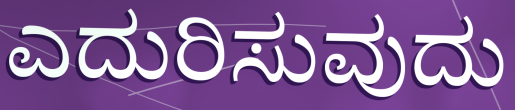
ಎದುರಿಸುವುದು